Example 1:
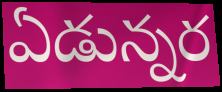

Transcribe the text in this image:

ఏడున్నర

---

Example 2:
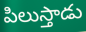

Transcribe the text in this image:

పిలుస్తాడు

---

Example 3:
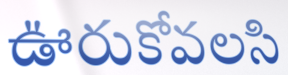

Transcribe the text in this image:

ఊరుకోవలసి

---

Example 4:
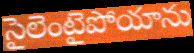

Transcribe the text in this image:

సైలెంటైపోయాను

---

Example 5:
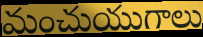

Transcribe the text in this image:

మంచుయుగాలు